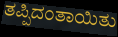
ತಪ್ಪಿದಂತಾಯಿತು